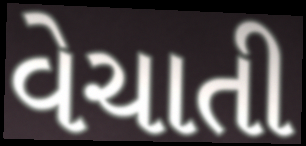
વેચાતી